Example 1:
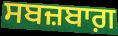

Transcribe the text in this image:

ਸਬਜ਼ਬਾਗ਼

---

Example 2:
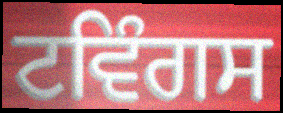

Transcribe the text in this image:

ਟਵਿੰਗਸ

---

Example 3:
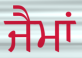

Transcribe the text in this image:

ਜੈਮਾਂ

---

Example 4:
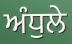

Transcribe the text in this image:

ਅੰਧੁਲੇ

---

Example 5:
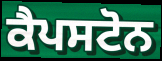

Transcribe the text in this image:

ਕੈਪਸਟੋਨ